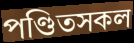
পণ্ডিতসকল